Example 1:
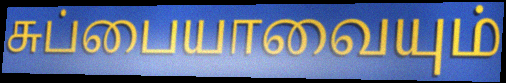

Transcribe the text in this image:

சுப்பையாவையும்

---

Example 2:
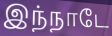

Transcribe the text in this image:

இந்நாடே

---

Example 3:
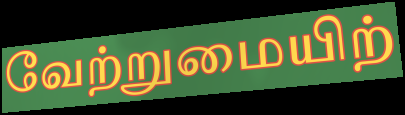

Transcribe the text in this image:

வேற்றுமையிற்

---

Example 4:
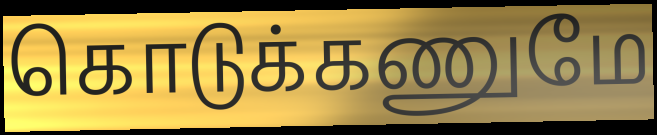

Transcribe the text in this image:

கொடுக்கணுமே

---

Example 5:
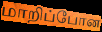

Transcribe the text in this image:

மாறிப்போன